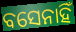
ବସେନାହିଁ